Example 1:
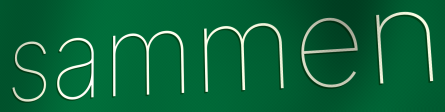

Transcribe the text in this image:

sammen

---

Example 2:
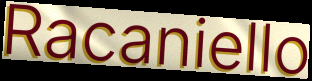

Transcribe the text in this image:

Racaniello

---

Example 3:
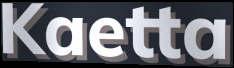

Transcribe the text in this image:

Kaetta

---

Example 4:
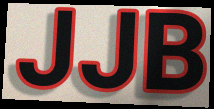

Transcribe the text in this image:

JJB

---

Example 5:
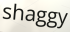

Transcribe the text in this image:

shaggy